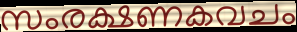
സംരക്ഷണകവചം